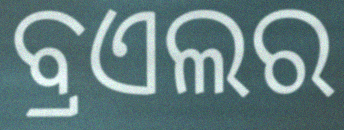
ବ୍ରଏଲର